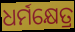
ଧର୍ମକ୍ଷେତ୍ର